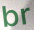
br